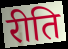
रीति